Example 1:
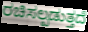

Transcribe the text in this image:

ರಚಿಸಲ್ಪಡುತ್ತದೆ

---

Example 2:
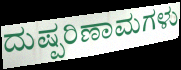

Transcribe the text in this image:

ದುಷ್ಪರಿಣಾಮಗಳು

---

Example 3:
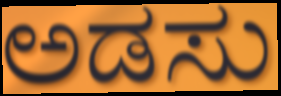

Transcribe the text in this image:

ಅಡಸು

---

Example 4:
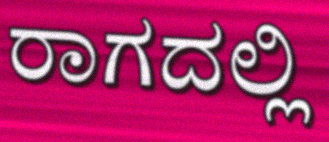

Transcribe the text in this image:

ರಾಗದಲ್ಲಿ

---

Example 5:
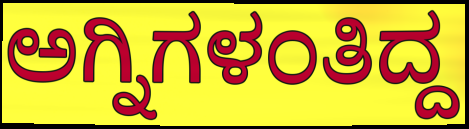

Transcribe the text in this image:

ಅಗ್ನಿಗಳಂತಿದ್ದ